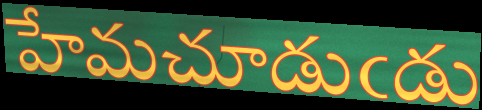
హేమచూడుఁడు